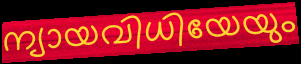
ന്യായവിധിയേയും